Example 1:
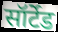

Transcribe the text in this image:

सॉर्टेड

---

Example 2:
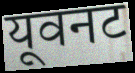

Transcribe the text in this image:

यूवनट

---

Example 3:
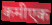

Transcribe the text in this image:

कमीएक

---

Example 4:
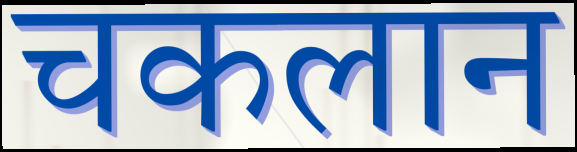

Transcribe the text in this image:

चकलान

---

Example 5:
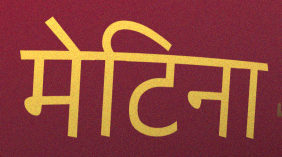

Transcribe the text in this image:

मेटिना